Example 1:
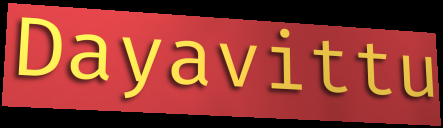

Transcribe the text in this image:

Dayavittu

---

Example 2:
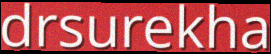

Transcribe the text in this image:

drsurekha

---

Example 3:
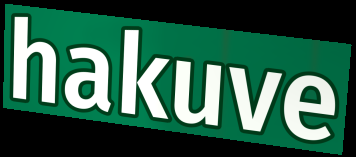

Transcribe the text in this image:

hakuve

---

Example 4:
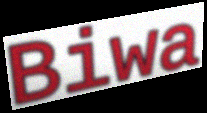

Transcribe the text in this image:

Biwa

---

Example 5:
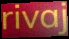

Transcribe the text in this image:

rivaj